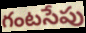
గంటసేపు